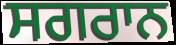
ਸਗਰਾਨ